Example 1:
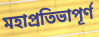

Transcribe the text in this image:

মহাপ্রতিভাপূর্ণ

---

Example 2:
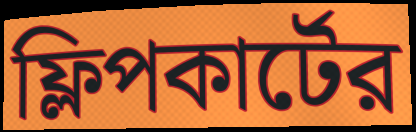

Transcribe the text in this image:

ফ্লিপকার্টের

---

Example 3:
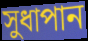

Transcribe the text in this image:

সুধাপান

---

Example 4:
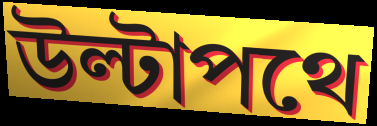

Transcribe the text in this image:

উল্টাপথে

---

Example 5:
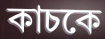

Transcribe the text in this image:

কাচকে